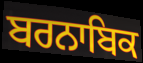
ਬਰਨਾਬਿਕ